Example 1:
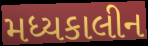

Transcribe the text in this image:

મધ્યકાલીન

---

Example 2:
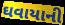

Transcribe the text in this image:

ઘવાયાની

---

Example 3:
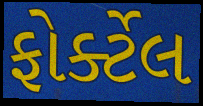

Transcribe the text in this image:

ફોર્ક્ટેલ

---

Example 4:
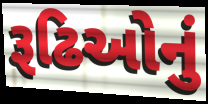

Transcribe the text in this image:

રૂઢિઓનું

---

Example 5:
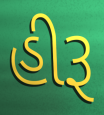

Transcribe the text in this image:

હીરૂ